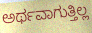
ಅರ್ಥವಾಗುತ್ತಿಲ್ಲ